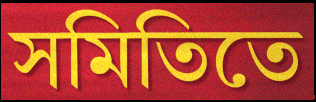
সমিতিতে